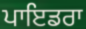
ਪਾਇਡਰਾ